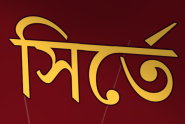
সির্তে